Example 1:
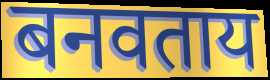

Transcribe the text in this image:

बनवताय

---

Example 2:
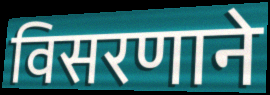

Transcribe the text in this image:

विसरणाने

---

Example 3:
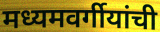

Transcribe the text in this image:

मध्यमवर्गीयांची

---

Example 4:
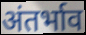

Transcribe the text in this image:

अंतर्भाव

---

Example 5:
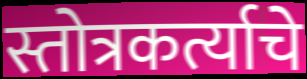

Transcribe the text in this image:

स्तोत्रकर्त्याचे